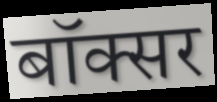
बॉक्सर